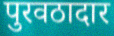
पुरवठादार